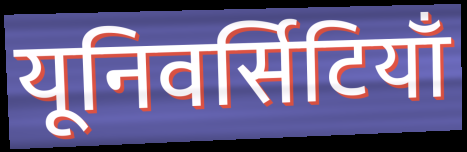
यूनिवर्सिटियाँ